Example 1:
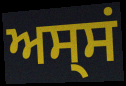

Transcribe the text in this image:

ਅਸ੍ਸਂ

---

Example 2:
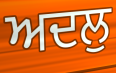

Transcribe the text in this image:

ਅਦਲੁ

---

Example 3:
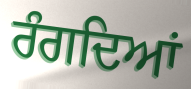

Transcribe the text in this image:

ਰੰਗਦਿਆਂ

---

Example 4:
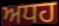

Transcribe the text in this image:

ਅਧਹ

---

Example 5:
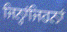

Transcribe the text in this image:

ਜਿਨ੍ਹਾਂਜਿਹਨਾਂ